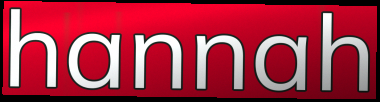
hannah